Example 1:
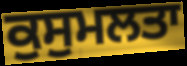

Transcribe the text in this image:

ਕੁਸੁਮਲਤਾ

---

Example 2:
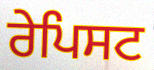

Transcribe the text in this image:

ਰੇਪਿਸਟ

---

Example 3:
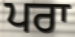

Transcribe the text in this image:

ਪਰਾ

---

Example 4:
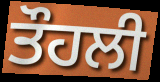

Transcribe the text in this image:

ਤੌਹਲੀ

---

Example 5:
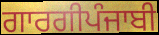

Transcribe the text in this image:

ਗਾਰਗੀਪੰਜਾਬੀ